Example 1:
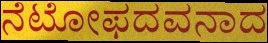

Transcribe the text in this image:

ನೆಟೋಫದವನಾದ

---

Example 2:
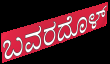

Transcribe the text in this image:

ಬವರದೊಳ್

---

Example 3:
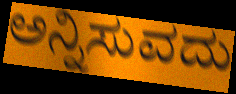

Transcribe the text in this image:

ಅನ್ನಿಸುವದು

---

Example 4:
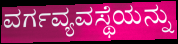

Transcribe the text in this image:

ವರ್ಗವ್ಯವಸ್ಥೆಯನ್ನು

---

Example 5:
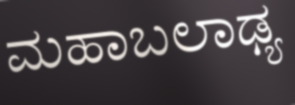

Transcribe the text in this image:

ಮಹಾಬಲಾಢ್ಯ